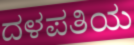
ದಳಪತಿಯ